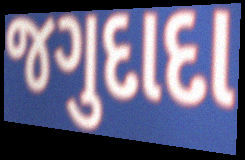
જગુદાદા